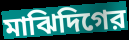
মাঝিদিগের